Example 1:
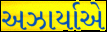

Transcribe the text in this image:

અઝાર્યાએ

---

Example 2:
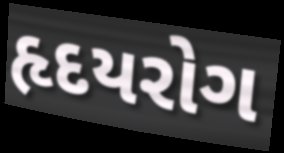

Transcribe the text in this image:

હૃદયરોગ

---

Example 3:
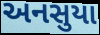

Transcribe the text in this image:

અનસુયા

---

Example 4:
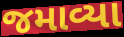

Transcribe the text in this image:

જમાવ્યા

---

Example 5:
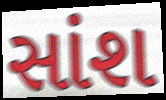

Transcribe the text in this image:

સાંશ